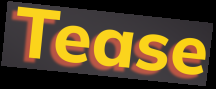
Tease